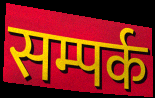
सम्‍पर्क